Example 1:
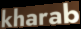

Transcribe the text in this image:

kharab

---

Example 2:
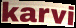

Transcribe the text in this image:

karvi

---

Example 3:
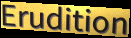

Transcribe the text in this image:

Erudition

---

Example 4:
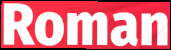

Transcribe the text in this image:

Roman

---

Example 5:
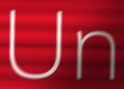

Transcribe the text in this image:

Un